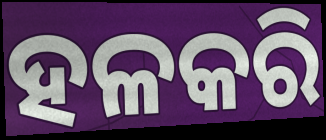
ହଳକରି